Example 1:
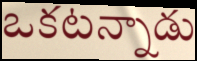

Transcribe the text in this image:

ఒకటన్నాడు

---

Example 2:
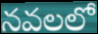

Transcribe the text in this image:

నవలలో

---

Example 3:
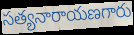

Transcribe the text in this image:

సత్యనారాయణగారు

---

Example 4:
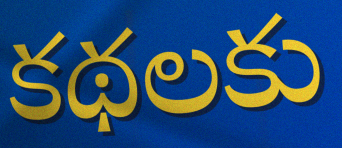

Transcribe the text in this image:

కథలకు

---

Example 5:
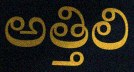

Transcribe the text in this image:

అత్తిలి